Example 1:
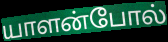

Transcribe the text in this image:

யாளன்போல்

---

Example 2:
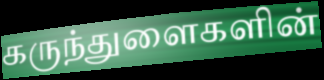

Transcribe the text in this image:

கருந்துளைகளின்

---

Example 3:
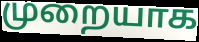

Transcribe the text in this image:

முறையாக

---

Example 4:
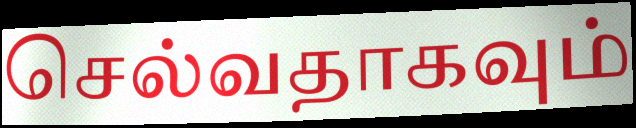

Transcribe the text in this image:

செல்வதாகவும்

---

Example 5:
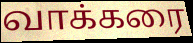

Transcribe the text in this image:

வாக்கரை